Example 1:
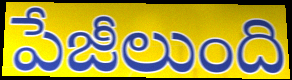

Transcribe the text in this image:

పేజీలుంది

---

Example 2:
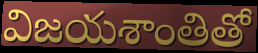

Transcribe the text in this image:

విజయశాంతితో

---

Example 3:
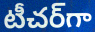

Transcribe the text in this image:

టీచర్‌గా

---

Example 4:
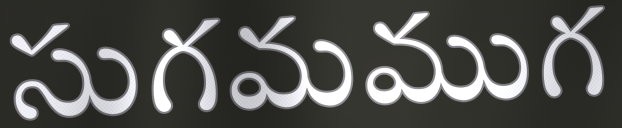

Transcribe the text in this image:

సుగమముగ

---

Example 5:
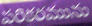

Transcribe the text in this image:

పరికరమును